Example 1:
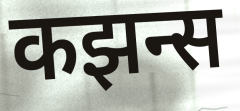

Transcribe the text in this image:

कझन्स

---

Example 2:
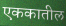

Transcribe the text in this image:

एककातील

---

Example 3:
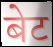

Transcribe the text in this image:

बेट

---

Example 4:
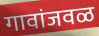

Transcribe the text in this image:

गावांजवळ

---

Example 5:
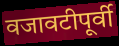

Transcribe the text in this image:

वजावटीपूर्वी